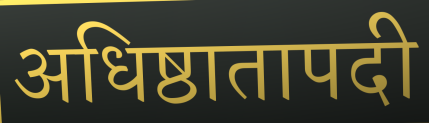
अधिष्ठातापदी